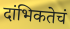
दांभिकतेचं